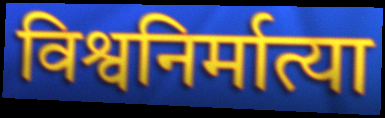
विश्वनिर्मात्या